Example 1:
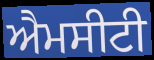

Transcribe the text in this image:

ਐਮਸੀਟੀ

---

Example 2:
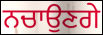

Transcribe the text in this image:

ਨਚਾਉਣਗੇ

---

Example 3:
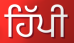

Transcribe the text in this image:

ਹਿੱਪੀ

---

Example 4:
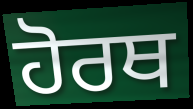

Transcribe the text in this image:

ਹੋਰਥ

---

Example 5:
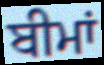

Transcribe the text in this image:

ਬੀਮਾਂ